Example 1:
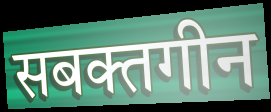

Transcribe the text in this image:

सबक्तगीन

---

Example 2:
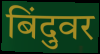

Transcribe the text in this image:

बिंदुवर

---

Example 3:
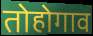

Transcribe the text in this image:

तोहोगाव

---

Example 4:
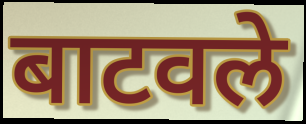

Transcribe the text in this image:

बाटवले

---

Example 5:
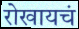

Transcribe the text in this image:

रोखायचं